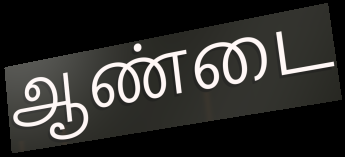
ஆண்டை